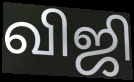
விஜி